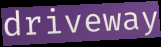
driveway